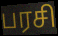
பரசி